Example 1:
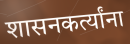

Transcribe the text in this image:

शासनकर्त्यांना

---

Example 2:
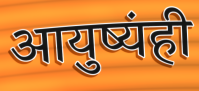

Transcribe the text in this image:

आयुष्यंही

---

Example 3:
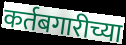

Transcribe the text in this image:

कर्तबगारीच्या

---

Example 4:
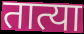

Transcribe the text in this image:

तात्या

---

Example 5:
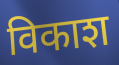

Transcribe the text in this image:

विकाश